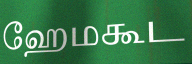
ஹேமகூட